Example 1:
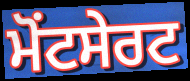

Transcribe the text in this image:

ਮੋਂਟਸੇਰਟ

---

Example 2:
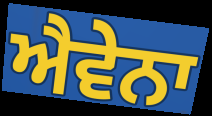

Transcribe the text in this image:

ਐਵੇਨਾ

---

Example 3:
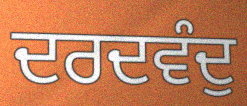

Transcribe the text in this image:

ਦਰਦਵੰਦੁ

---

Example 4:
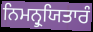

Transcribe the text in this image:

ਨਿਮਨ੍ਤ੍ਰਯਿਤਾਰੰ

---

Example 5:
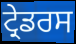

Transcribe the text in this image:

ਟ੍ਰੇਡਰਸ